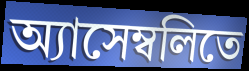
অ্যাসেম্বলিতে